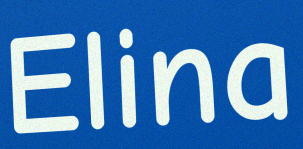
Elina